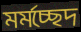
মর্মচ্ছেদ